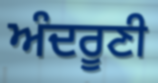
ਅੰਦਰੂਣੀ